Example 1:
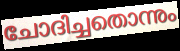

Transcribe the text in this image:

ചോദിച്ചതൊന്നും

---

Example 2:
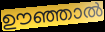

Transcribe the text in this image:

ഊഞ്ഞാൽ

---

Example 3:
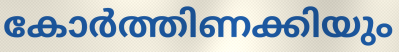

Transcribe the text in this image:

കോർത്തിണക്കിയും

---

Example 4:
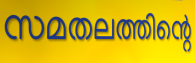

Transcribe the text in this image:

സമതലത്തിന്റെ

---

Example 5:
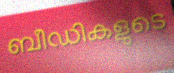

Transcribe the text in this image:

ബീഡികളുടെ